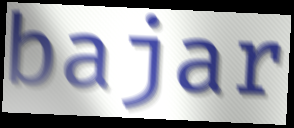
bajar